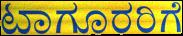
ಟಾಗೂರರಿಗೆ